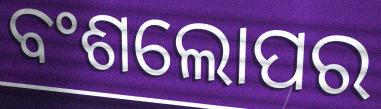
ବଂଶଲୋପର